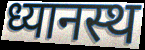
ध्यानस्थ